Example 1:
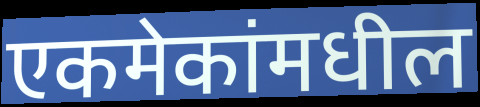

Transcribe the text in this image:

एकमेकांमधील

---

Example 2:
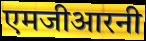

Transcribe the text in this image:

एमजीआरनी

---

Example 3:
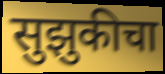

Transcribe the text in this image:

सुझुकीचा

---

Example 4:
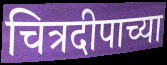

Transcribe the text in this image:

चित्रदीपाच्या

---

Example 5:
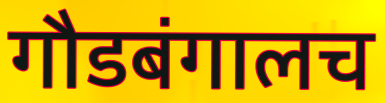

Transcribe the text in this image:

गौडबंगालच